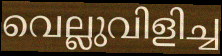
വെല്ലുവിളിച്ച